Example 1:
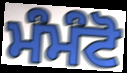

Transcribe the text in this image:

ਮੰਮੰਟੋ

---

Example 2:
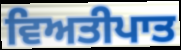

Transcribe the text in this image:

ਵਿਅਤੀਪਾਤ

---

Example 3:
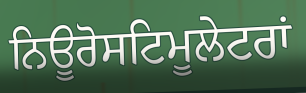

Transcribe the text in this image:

ਨਿਊਰੋਸਟਿਮੂਲੇਟਰਾਂ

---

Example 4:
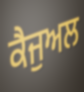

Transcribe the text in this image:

ਕੈਜੁਅਲ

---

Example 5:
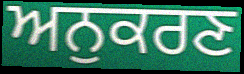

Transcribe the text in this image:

ਅਨੁਕਰਣ